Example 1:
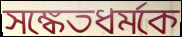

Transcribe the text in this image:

সঙ্কেতধর্মকে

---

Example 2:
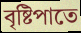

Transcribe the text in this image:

বৃষ্টিপাতে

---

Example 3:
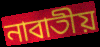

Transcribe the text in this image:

নাবাতীয়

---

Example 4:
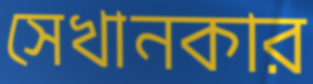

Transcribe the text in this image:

সেখানকার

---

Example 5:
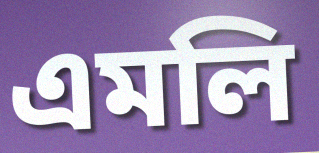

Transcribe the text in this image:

এমলি